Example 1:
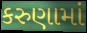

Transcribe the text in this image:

કરુણામાં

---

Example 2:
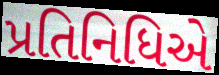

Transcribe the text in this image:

પ્રતિનિધિએ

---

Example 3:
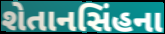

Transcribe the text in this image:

શેતાનસિંહના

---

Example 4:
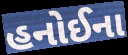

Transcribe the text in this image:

હનોઈના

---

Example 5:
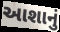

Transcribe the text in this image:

આશાનું